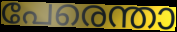
പേരെന്താ